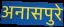
अनासपुरे